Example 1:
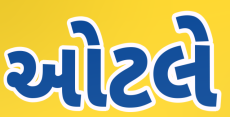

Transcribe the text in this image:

ઓટલે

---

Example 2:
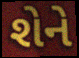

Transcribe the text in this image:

શેને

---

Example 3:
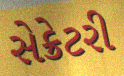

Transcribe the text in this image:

સેક્રેટરી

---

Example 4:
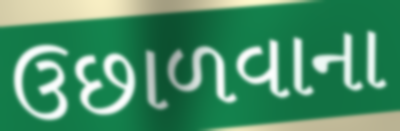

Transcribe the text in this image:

ઉછાળવાના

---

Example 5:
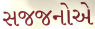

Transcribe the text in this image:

સજજનોએ